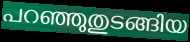
പറഞ്ഞുതുടങ്ങിയ